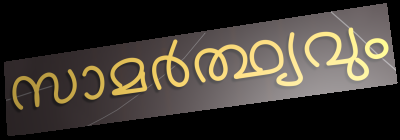
സാമർത്ഥ്യവും